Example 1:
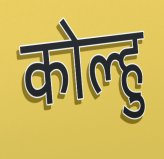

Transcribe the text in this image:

कोल्हु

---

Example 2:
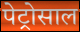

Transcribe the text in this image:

पेट्रोसाल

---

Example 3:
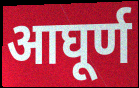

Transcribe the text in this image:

आघूर्ण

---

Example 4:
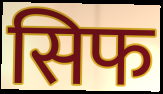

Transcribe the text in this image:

सिफ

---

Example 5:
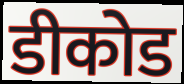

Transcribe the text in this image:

डीकोड